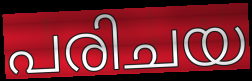
പരിചയ